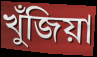
খুঁজিয়া